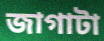
জাগাটা